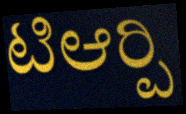
ಟಿಆರ್‍ಪಿ